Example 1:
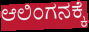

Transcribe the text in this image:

ಆಲಿಂಗನಕ್ಕೆ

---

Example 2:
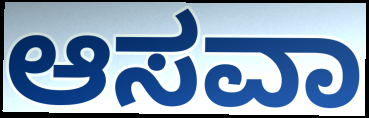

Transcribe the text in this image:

ಆಸವಾ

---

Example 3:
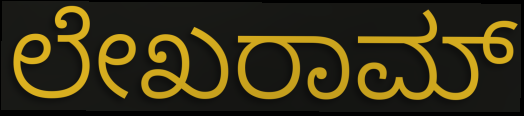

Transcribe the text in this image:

ಲೇಖರಾಮ್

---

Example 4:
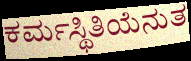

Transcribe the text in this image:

ಕರ್ಮಸ್ಥಿತಿಯೆನುತ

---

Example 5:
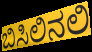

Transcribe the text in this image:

ಬಿಸಿಲಿನಲಿ